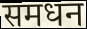
समधन